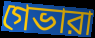
গেভারা